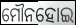
ମୌନହୋଇ